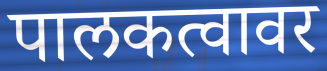
पालकत्वावर